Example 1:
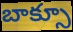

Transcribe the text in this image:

బాక్సూ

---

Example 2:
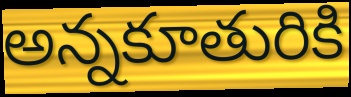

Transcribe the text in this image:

అన్నకూతురికి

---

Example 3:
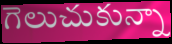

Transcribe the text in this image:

గెలుచుకున్నా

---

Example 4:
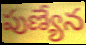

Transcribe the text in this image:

పుణ్యేన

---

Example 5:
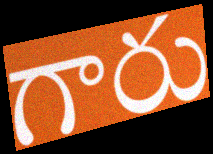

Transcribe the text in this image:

గారు